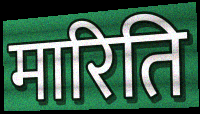
मारिति